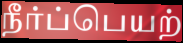
நீர்ப்பெயற்